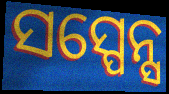
ସସ୍ପେନ୍ସ